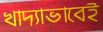
খাদ্যাভাবেই